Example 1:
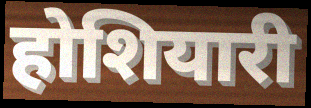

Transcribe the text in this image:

होशियारी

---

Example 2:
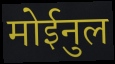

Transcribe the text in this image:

मोईनुल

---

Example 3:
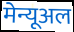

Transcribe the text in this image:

मेन्यूअल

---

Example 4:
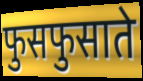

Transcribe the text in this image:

फुसफुसाते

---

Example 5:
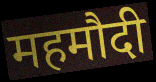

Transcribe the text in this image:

महमौदी